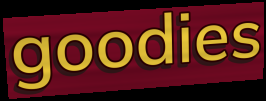
goodies